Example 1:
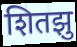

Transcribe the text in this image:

शितझु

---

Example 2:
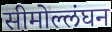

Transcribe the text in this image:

सीमोल्लंघन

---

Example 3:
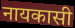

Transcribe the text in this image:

नायकासी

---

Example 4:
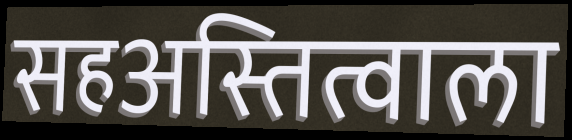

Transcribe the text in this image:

सहअस्तित्वाला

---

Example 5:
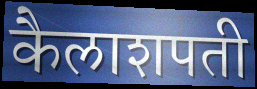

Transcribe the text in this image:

कैलाशपती